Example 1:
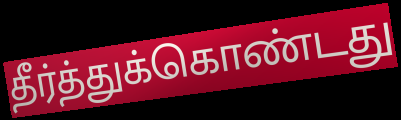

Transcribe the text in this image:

தீர்த்துக்கொண்டது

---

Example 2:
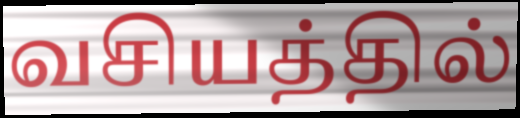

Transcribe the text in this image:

வசியத்தில்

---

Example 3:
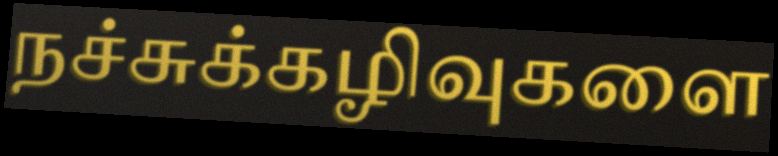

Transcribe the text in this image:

நச்சுக்கழிவுகளை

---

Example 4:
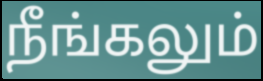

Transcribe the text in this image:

நீங்கலும்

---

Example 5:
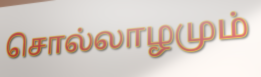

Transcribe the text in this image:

சொல்லாழமும்